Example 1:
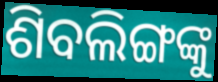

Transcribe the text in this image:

ଶିବଲିଙ୍ଗଙ୍କୁ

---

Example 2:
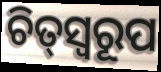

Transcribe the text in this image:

ଚିତ୍‌ସ୍ୱରୂପ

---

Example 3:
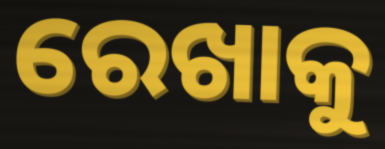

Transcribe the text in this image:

ରେଖାକୁ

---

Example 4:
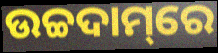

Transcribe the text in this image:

ଉଚ୍ଚଦାମ୍‌ରେ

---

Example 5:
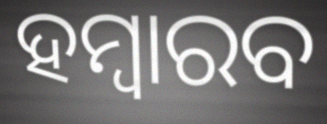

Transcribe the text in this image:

ହମ୍ବାରବ